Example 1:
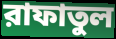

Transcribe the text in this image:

রাফাতুল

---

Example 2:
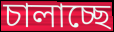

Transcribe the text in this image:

চালাচ্ছে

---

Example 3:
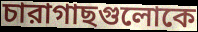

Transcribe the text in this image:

চারাগাছগুলোকে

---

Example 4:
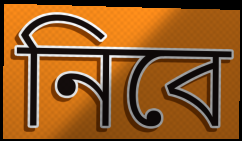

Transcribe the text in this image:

নিবে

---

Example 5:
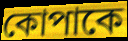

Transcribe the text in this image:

কোপাকে